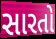
સારતો